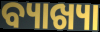
ବ୍ୟାଖ୍ୟା